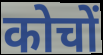
कोचों